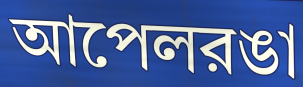
আপেলরঙা